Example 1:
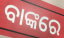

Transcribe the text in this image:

ବାଙ୍କରେ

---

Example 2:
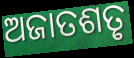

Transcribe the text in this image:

ଅଜାତଶତୃ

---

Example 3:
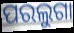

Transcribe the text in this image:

ପରଲୁଗା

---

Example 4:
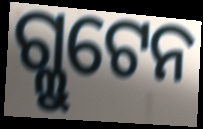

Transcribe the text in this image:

ଗ୍ଲୁଟେନ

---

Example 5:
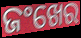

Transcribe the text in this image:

ଜଂଖେର